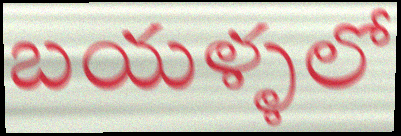
బయళ్ళలో